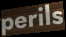
perils